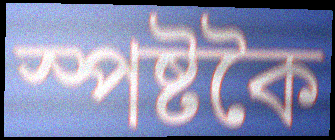
স্পষ্টকৈ